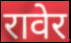
रावेर